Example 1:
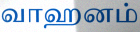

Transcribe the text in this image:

வாஹனம்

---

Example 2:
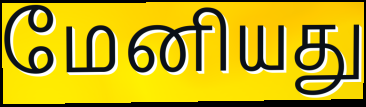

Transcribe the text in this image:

மேனியது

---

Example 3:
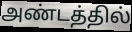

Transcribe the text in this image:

அண்டத்தில்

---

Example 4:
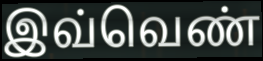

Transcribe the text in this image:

இவ்வெண்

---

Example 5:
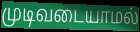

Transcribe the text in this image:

முடிவடையாமல்